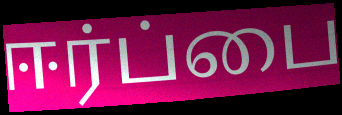
ஈர்ப்பை